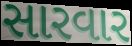
સારવાર